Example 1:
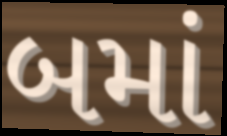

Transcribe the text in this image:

બમાં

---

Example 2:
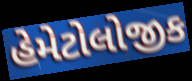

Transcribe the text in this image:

હેમેટોલોજીક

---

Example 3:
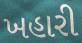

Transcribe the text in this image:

ખહારી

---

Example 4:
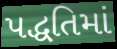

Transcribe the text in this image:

પદ્ધતિમાં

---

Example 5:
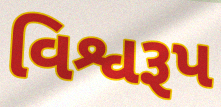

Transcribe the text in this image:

વિશ્વરૂપ